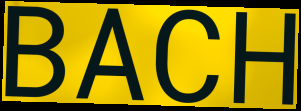
BACH